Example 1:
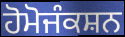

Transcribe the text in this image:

ਹੋਮੋਜੰਕਸ਼ਨ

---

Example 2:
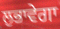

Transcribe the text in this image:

ਲੁਭਾਵੇਗਾ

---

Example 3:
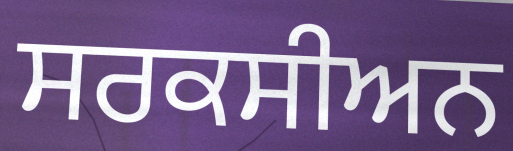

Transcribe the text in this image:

ਸਰਕਸੀਅਨ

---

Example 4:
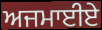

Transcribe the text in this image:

ਅਜਮਾਈਏ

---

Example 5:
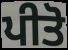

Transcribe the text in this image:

ਪੀਤੋ